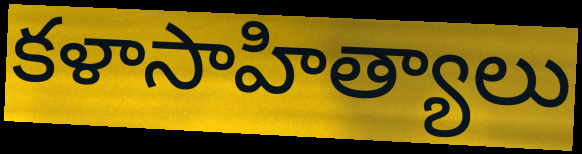
కళాసాహిత్యాలు